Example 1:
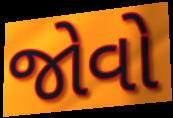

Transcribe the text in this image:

જોવો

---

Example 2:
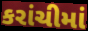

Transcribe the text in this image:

કરાંચીમાં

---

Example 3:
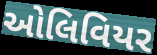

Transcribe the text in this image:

ઓલિવિયર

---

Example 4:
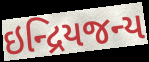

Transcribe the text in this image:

ઇન્દ્રિયજન્ય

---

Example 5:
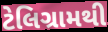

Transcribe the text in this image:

ટેલિગ્રામથી